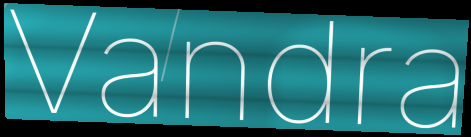
Vandra